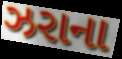
ઝરાના